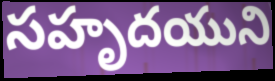
సహృదయుని